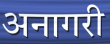
अनागरी